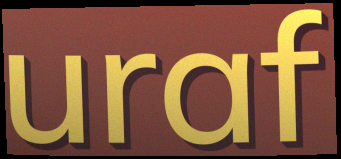
uraf